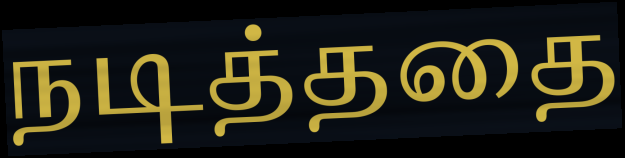
நடித்ததை